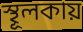
স্থূলকায়